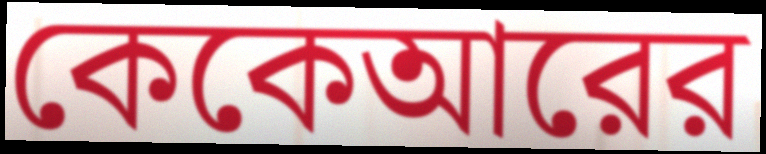
কেকেআরের